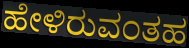
ಹೇಳಿರುವಂತಹ